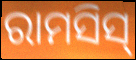
ରାମସିସ୍